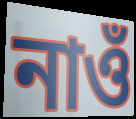
নাওঁ